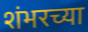
शंभरच्या